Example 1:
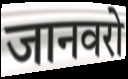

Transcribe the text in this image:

जानवरो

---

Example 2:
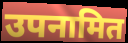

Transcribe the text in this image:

उपनामित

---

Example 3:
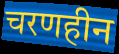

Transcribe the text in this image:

चरणहीन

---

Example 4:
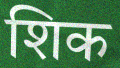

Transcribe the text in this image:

शिक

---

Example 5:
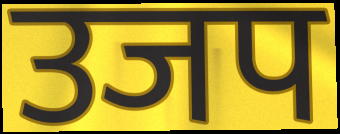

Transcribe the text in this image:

उजप